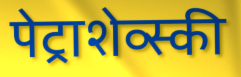
पेट्राशेव्स्की